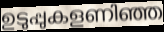
ഉടുപ്പുകളണിഞ്ഞ